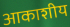
आकाशीय